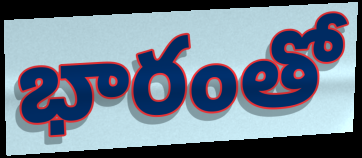
భారంతో